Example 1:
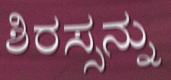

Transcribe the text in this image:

ಶಿರಸ್ಸನ್ನು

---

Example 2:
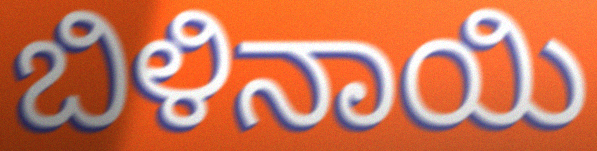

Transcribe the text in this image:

ಬಿಳಿನಾಯಿ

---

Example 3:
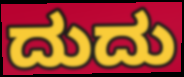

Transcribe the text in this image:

ದುದು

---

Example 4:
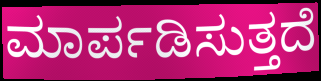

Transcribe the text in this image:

ಮಾರ್ಪಡಿಸುತ್ತದೆ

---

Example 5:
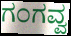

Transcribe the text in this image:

ಗಂಗವ್ವ